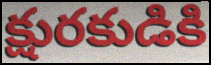
క్షురకుడికి